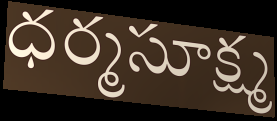
ధర్మసూక్ష్మ